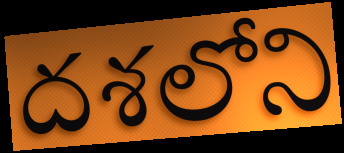
దశలోని